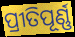
ପ୍ରୀତିପୂର୍ଣ୍ଣ